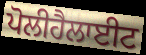
ਪੋਲੀਹੈਲਾਈਟ